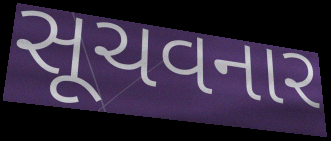
સૂચવનાર